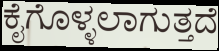
ಕೈಗೊಳ್ಳಲಾಗುತ್ತದೆ